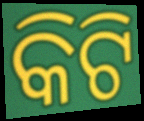
କିଟି